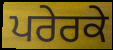
ਪਰੇਰਕੇ